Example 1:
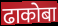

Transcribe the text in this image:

ढाकोबा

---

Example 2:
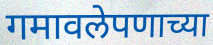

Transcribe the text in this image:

गमावलेपणाच्या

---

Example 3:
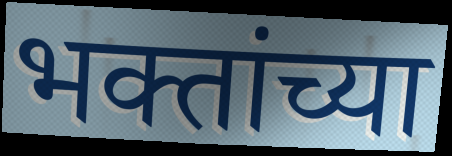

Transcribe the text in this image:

भक्तांच्या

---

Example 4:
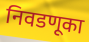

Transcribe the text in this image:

निवडणूका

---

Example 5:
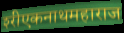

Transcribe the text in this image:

श्रीएकनाथमहाराज